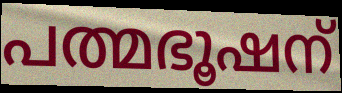
പത്മഭൂഷന്